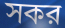
সকর